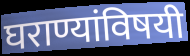
घराण्यांविषयी